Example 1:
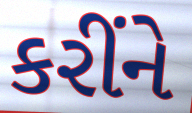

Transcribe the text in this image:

કરીંને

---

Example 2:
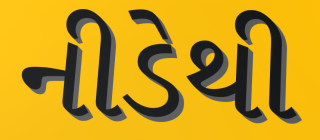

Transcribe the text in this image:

નીડેથી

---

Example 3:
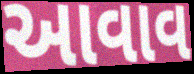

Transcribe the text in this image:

આવાવ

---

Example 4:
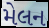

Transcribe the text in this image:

મેલન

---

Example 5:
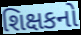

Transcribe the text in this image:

શિક્ષકનો